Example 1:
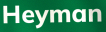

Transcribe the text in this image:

Heyman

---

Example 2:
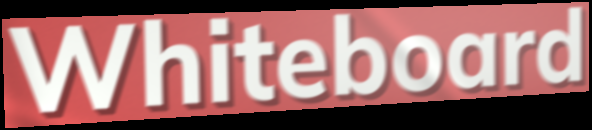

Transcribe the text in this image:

Whiteboard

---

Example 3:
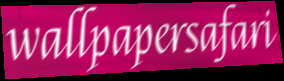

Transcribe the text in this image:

wallpapersafari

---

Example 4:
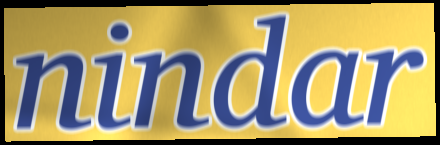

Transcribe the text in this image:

nindar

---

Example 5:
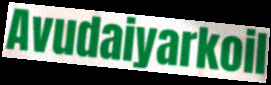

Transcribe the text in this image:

Avudaiyarkoil